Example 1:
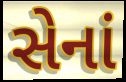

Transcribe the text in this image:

સેનાં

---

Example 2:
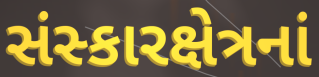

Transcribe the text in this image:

સંસ્કારક્ષેત્રનાં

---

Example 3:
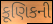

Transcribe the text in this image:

કૂણિકની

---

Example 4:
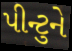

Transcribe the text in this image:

પીન્ટુને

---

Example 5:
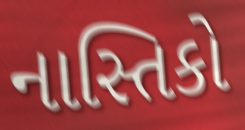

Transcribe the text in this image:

નાસ્તિકો